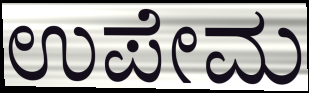
ಉಪೇಮ